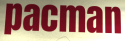
pacman